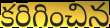
కరిగించిన